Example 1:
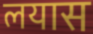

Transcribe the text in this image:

लयास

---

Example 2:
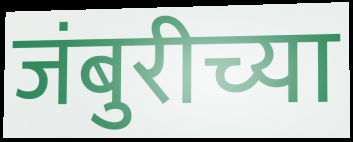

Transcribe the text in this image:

जंबुरीच्या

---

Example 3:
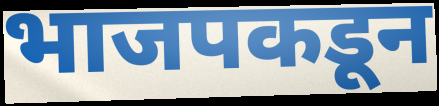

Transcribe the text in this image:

भाजपकडून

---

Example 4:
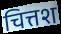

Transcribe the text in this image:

चित्तश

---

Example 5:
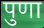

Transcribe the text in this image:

पुणा